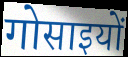
गोसाइयों